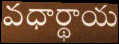
వధార్థాయ